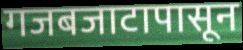
गजबजाटापासून